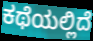
ಕಥೆಯಲ್ಲಿದೆ